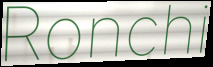
Ronchi